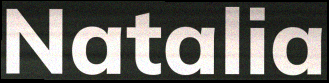
Natalia